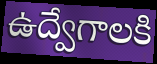
ఉద్వేగాలకి